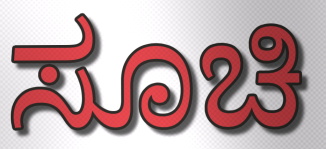
ಸೂಚಿ